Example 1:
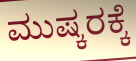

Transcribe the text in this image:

ಮುಷ್ಕರಕ್ಕೆ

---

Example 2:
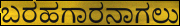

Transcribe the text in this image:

ಬರಹಗಾರನಾಗಲು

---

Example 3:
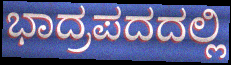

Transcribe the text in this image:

ಭಾದ್ರಪದದಲ್ಲಿ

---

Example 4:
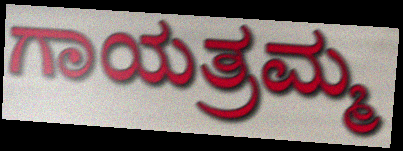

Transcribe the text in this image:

ಗಾಯತ್ರಮ್ಮ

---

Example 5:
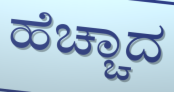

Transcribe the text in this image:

ಹೆಚ್ಚಾದ